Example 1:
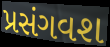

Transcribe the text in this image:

પ્રસંગવશ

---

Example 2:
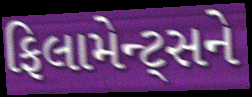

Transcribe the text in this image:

ફિલામેન્ટ્સને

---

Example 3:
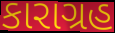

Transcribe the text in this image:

કારાગ્રહ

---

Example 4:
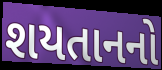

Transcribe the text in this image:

શયતાનનો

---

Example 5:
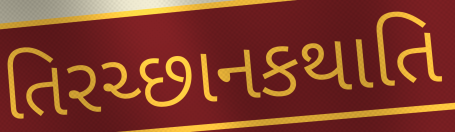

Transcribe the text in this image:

તિરચ્છાનકથાતિ